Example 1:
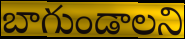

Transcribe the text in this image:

బాగుండాలని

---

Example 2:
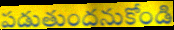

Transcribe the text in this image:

పడుతుందనుకోండి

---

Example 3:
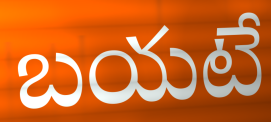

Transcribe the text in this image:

బయటే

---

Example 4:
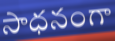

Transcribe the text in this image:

సాధనంగా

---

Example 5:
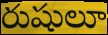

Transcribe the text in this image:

రుషులూ